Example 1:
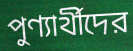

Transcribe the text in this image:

পুণ্যার্থীদের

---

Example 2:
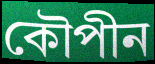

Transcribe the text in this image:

কৌপীন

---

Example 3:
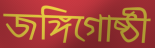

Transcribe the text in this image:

জঙ্গিগোষ্ঠী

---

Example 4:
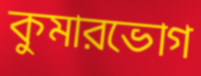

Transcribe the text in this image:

কুমারভোগ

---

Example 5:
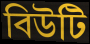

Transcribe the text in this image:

বিউটি